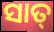
ସାତ୍